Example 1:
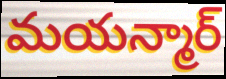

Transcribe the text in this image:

మయన్మార్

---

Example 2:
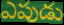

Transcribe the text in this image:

ఎపుడు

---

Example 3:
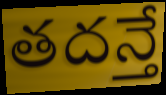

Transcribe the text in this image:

తదన్తే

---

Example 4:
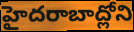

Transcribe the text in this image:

హైదరాబాద్లోని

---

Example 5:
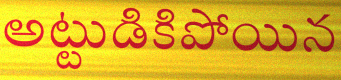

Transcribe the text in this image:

అట్టుడికిపోయిన